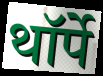
थॉर्पे